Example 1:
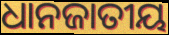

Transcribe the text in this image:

ଧାନଜାତୀୟ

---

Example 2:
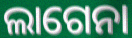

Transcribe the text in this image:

ଲାଗେନା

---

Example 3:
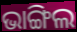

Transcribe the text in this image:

ଭାଙ୍ଗିଲ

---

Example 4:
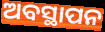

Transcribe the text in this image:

ଅବସ୍ଥାପନ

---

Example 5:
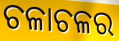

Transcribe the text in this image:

ଚଳାଚଳର